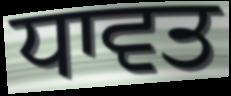
ਧਾਵਤ